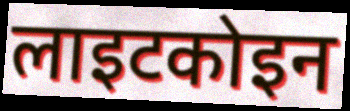
लाइटकोइन